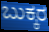
ಬುಕ್ಕರ